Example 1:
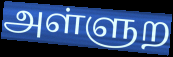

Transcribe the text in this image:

அள்ளுற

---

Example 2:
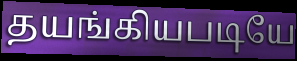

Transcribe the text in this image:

தயங்கியபடியே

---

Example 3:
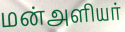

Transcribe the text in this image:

மன்அளியர்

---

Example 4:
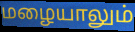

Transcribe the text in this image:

மழையாலும்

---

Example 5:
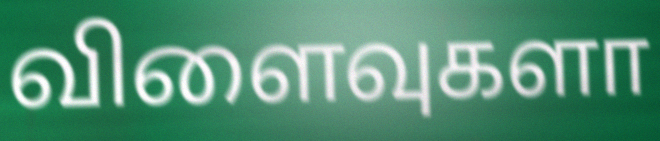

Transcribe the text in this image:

விளைவுகளா